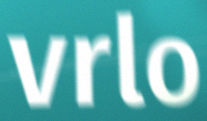
vrlo